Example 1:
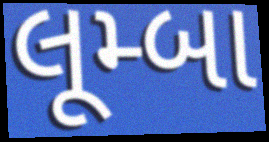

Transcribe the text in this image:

લૂમ્બા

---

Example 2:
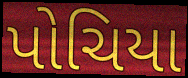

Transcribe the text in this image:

પોચિયા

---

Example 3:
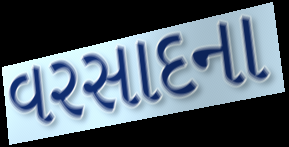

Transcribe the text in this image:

વરસાદના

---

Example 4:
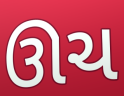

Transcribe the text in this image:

ઊચ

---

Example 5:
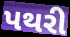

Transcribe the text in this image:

પથરી